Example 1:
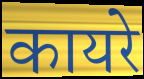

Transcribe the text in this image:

कायरे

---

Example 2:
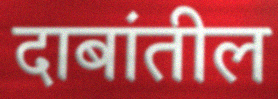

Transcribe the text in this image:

दाबांतील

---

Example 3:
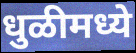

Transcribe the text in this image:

धुळीमध्ये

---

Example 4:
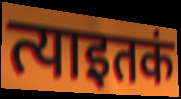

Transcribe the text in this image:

त्याइतकं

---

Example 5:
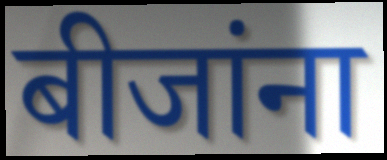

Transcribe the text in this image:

बीजांना